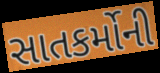
સાતકર્મોની